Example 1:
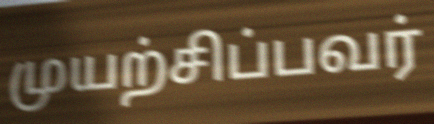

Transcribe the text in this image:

முயற்சிப்பவர்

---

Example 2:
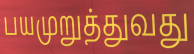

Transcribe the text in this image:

பயமுறுத்துவது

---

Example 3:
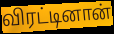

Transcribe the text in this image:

விரட்டினான்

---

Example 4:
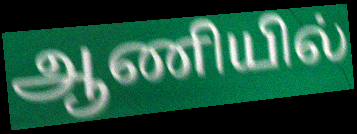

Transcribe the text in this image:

ஆணியில்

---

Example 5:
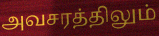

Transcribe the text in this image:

அவசரத்திலும்